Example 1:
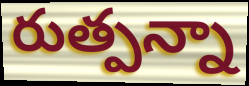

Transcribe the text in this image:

రుత్పన్నా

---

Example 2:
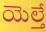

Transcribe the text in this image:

యెల్తే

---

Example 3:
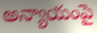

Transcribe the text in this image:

అన్యాయంపై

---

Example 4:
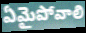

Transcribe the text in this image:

ఏమైపోవాలి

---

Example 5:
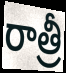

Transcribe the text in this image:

రాత్రీ